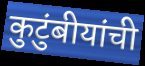
कुटुंबीयांची